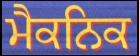
ਮੈਕਨਿਕ